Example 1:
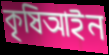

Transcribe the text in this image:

কৃষিআইন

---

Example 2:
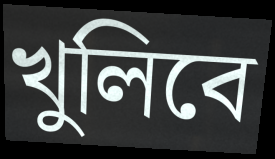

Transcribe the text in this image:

খুলিবে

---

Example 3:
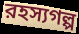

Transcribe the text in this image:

রহস্যগল্প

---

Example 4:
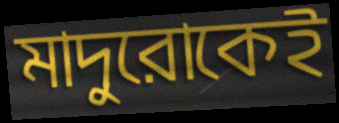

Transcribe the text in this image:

মাদুরোকেই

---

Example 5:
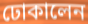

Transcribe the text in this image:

ঢোকালেন